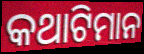
କଥାଟିମାନ